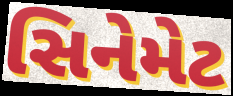
સિનેમેટ